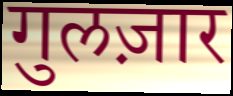
गुलज़ार